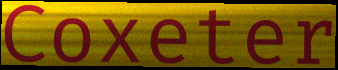
Coxeter